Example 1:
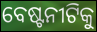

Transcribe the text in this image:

ବେଷ୍ଟନୀଟିକୁ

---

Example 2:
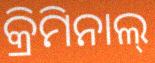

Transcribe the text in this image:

କ୍ରିମିନାଲ୍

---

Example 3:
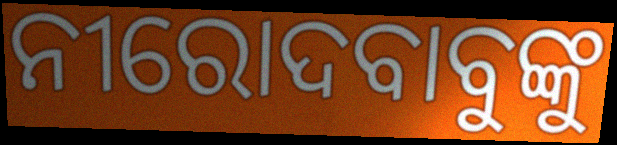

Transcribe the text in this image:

ନୀରୋଦବାବୁଙ୍କୁ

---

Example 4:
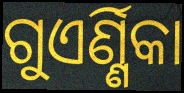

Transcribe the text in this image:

ଗୁଏର୍ଣ୍ଣିକା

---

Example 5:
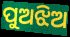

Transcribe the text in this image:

ପୁଅଝିଅ